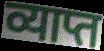
व्याप्त